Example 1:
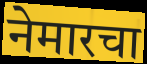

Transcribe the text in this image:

नेमारचा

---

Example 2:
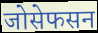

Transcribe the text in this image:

जोसेफसन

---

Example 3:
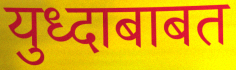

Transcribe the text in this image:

युध्दाबाबत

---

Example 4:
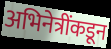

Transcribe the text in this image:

अभिनेत्रींकडून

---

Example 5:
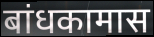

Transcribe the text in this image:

बांधकामास